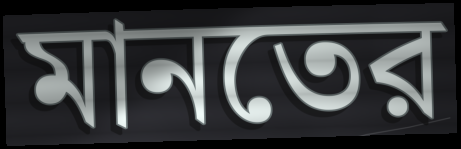
মানতের